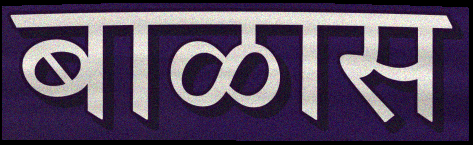
बाळास